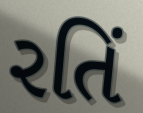
રતિં